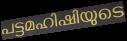
പട്ടമഹിഷിയുടെ